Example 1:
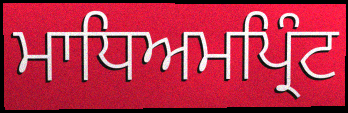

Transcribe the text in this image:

ਮਾਧਿਅਮਪ੍ਰਿੰਟ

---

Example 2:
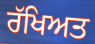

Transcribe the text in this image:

ਰੱਖਿਅਤ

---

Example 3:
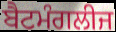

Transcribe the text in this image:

ਬੈਟਮੰਗਲੀਜ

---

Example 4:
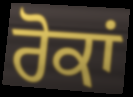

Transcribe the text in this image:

ਰੋਕਾਂ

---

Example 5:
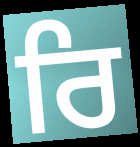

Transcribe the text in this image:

ਰਿ